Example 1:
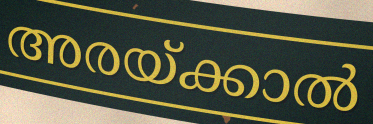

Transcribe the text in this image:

അരയ്ക്കാൽ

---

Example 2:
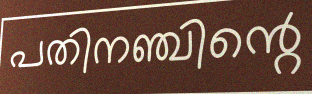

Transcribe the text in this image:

പതിനഞ്ചിന്റെ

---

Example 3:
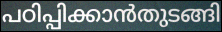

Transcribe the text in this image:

പഠിപ്പിക്കാൻതുടങ്ങി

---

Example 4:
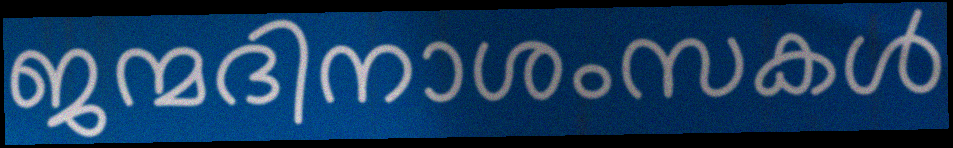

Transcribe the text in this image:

ജന്മദിനാശംസകൾ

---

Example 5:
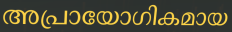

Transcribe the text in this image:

അപ്രായോഗികമായ